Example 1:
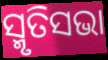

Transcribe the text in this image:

ସ୍ମୃତିସଭା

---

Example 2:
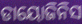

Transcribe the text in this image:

ଡାୟୋଜିନିସ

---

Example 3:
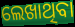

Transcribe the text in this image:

ଲେଖାଥିବା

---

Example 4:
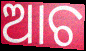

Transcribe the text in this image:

ଆଚ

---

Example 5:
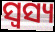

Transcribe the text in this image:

ସ୍ଵସ୍ୟ